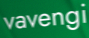
vavengi